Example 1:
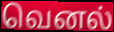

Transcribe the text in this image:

வெனல்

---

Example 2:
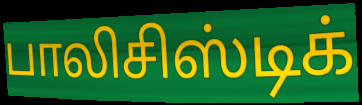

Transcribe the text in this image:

பாலிசிஸ்டிக்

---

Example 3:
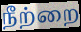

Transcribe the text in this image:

நீற்றை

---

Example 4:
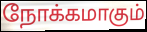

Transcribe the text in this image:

நோக்கமாகும்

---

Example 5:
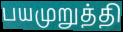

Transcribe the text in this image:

பயமுறுத்தி